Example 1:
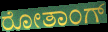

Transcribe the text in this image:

ರೋತಾಂಗ್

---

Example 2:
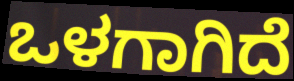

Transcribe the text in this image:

ಒಳಗಾಗಿದೆ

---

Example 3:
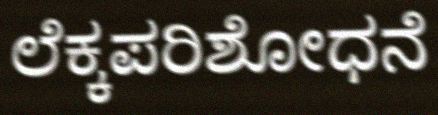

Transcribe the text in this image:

ಲೆಕ್ಕಪರಿಶೋಧನೆ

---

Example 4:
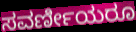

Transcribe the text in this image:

ಸವರ್ಣೀಯರೂ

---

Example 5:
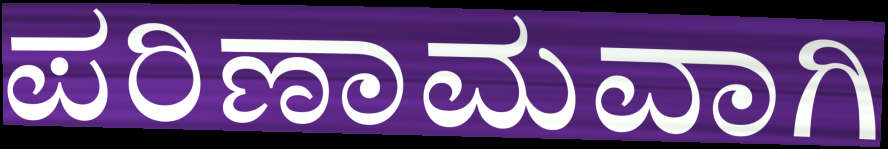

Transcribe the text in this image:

ಪರಿಣಾಮವಾಗಿ